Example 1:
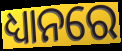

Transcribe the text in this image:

ଧ୍ୟାନରେ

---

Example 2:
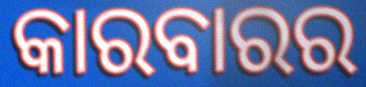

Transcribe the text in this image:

କାରବାରର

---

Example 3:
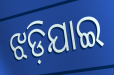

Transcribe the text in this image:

ଝଡ଼ିଯାଇ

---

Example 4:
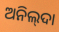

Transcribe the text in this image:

ଅନିଲ୍‌ଦା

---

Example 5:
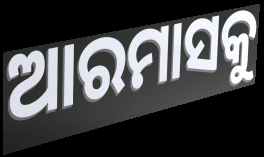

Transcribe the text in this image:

ଆରମାସକୁ